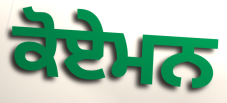
ਕੋਏਮਨ